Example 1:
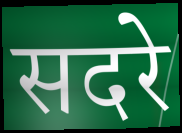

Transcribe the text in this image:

सदरे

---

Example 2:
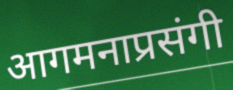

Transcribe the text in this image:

आगमनाप्रसंगी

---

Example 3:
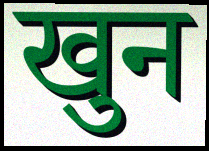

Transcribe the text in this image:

खुन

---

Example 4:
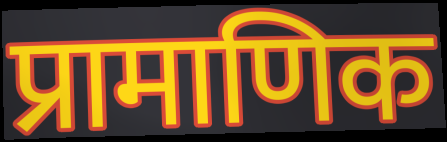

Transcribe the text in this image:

प्रामाणिक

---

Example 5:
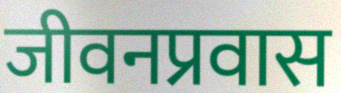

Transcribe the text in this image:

जीवनप्रवास